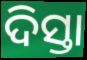
ଦିସ୍ତା